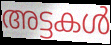
അട്ടകൾ